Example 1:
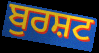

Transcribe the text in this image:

ਬੁਰਸ਼ਟ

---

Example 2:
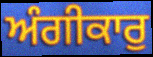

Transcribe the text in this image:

ਅੰਗੀਕਾਰੁ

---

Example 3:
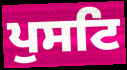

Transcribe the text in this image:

ਪੁਸਟਿ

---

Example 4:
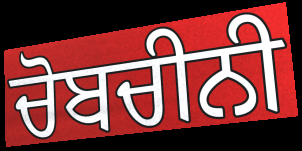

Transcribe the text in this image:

ਚੋਬਚੀਨੀ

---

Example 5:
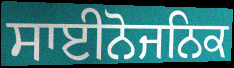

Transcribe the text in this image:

ਸਾਈਨੋਜਨਿਕ